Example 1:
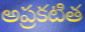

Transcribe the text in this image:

అప్రకటిత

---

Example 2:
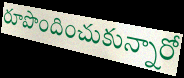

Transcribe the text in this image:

రూపొందించుకున్నారో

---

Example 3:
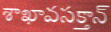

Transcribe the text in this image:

శాఖావసక్తాన్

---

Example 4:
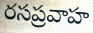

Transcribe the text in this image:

రసప్రవాహ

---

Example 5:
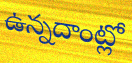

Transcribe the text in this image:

ఉన్నదాంట్లో